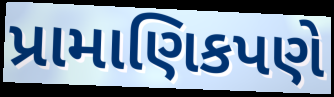
પ્રામાણિકપણે